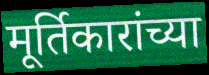
मूर्तिकारांच्या